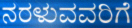
ನರಳುವವರಿಗೆ